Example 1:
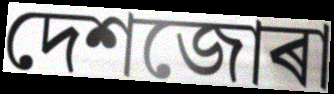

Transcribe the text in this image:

দেশজোৰা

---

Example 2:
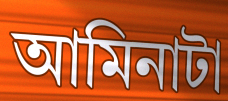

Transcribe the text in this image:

আমিনাটা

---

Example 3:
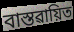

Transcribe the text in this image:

বাস্তৱায়িত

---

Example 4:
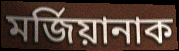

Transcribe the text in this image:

মৰ্জিয়ানাক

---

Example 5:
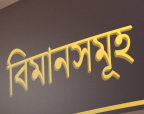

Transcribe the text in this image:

বিমানসমূহ